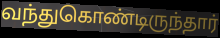
வந்துகொண்டிருந்தார்